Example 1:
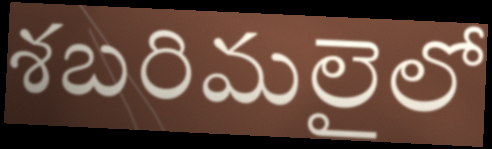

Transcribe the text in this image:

శబరిమలైలో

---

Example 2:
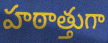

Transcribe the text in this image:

హఠాత్తుగా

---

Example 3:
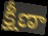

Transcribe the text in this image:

క్షీణా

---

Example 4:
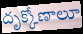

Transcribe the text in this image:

దృక్కోణాలూ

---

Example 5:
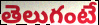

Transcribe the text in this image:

తెలుగంటే